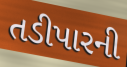
તડીપારની